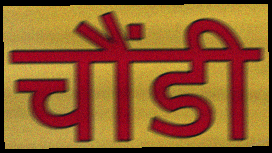
चौंडी